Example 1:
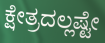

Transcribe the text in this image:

ಕ್ಷೇತ್ರದಲ್ಲಷ್ಟೇ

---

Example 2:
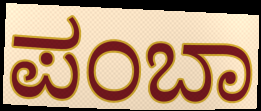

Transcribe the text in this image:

ಪಂಬಾ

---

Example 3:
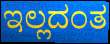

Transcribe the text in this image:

ಇಲ್ಲದಂತ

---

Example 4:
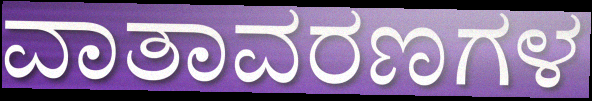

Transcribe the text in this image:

ವಾತಾವರಣಗಳ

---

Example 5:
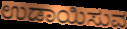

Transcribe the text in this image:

ಉಡಾಯಿಸುವ